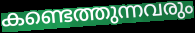
കണ്ടെത്തുന്നവരും